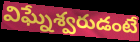
విఘ్నేశ్వరుడంటే